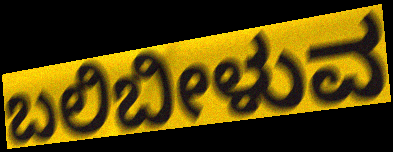
ಬಲಿಬೀಳುವ